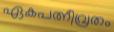
ഏകപത്നീവ്രതം